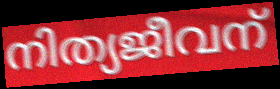
നിത്യജീവന്